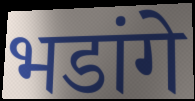
भडांगे